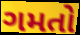
ગમતો